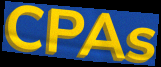
CPAs